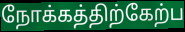
நோக்கத்திற்கேற்ப